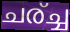
ചര്ച്ച